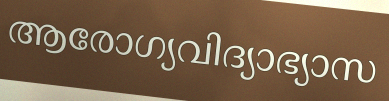
ആരോഗ്യവിദ്യാഭ്യാസ